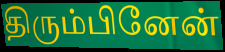
திரும்பினேன்